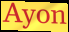
Ayon